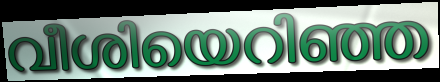
വീശിയെറിഞ്ഞ